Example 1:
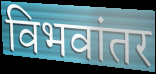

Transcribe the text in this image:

विभवांतर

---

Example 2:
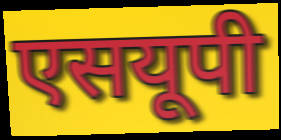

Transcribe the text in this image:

एसयूपी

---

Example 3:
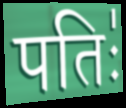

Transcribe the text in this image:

पतिः॑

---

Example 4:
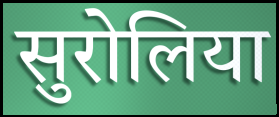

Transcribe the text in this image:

सुरोलिया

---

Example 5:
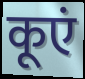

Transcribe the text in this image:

कूएं